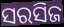
ସରସିଜ